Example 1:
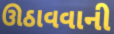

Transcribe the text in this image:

ઊઠાવવાની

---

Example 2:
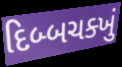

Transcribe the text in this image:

દિબ્બચક્ખું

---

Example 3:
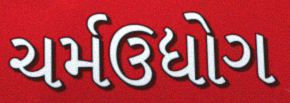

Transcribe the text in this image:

ચર્મઉદ્યોગ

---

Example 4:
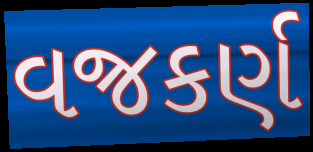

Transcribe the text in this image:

વજ્રકર્ણ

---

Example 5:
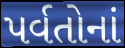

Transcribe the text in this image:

પર્વતોનાં